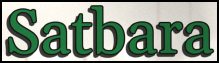
Satbara